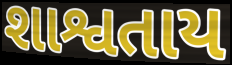
શાશ્વતાય